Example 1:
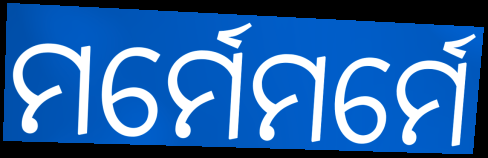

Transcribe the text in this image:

ମର୍ମେମର୍ମେ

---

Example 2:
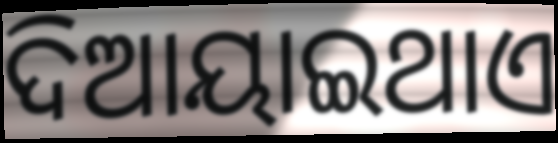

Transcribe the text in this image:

ଦିଆୟାଇଥାଏ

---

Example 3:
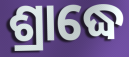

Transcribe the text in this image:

ଶ୍ରାଦ୍ଧେ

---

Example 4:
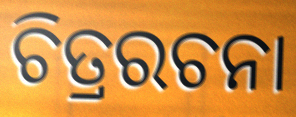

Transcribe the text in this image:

ଚିତ୍ରରଚନା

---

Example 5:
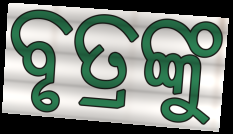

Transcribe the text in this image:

ବୃତ୍ରଙ୍କୁ